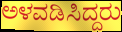
ಅಳವಡಿಸಿದ್ದರು